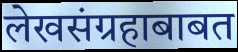
लेखसंग्रहाबाबत